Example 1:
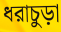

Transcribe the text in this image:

ধরাচুড়া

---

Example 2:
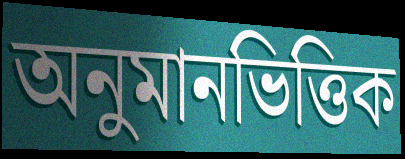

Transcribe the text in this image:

অনুমানভিত্তিক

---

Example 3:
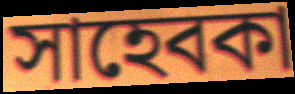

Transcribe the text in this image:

সাহেবকা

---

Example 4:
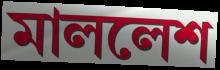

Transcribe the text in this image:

মাললেশ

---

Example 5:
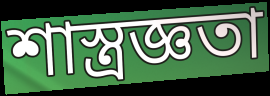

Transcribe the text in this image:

শাস্ত্রজ্ঞতা